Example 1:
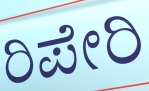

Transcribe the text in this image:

ರಿಪೇರಿ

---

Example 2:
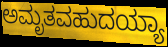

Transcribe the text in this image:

ಅಮೃತವಹುದಯ್ಯಾ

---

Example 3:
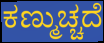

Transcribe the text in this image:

ಕಣ್ಮುಚ್ಚದೆ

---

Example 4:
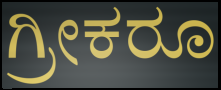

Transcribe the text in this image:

ಗ್ರೀಕರೂ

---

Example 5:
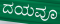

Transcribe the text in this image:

ದಯವೂ